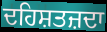
ਦਹਿਸ਼ਤਜ਼ਦਾ